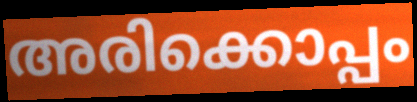
അരിക്കൊപ്പം